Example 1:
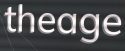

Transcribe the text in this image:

theage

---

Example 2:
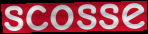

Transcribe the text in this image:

scosse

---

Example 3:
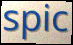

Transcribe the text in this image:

spic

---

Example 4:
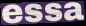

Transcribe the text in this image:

essa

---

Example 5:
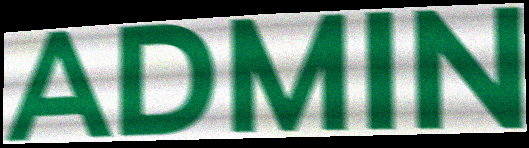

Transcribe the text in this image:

ADMIN